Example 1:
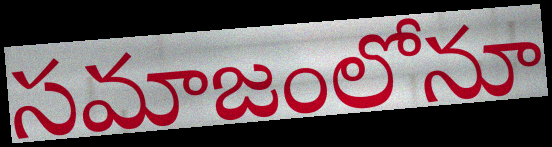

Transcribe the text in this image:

సమాజంలోనూ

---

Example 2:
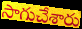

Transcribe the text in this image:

సాగుచేశారు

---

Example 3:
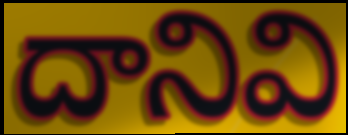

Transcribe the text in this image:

దానివి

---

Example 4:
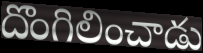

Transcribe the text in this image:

దొంగిలించాడు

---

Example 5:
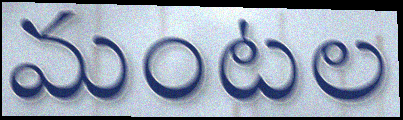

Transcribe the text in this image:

మంటల